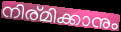
നിര്മിക്കാനും